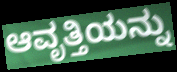
ಆವೃತ್ತಿಯನ್ನು